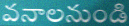
వనాలనుండి